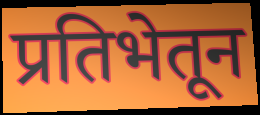
प्रतिभेतून